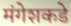
मंगेशकडे